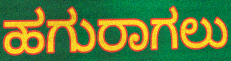
ಹಗುರಾಗಲು